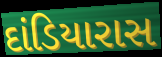
દાંડિયારાસ